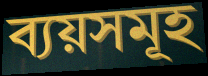
ব্যয়সমূহ